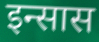
इन्सास